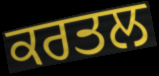
ਕਰਤਲ